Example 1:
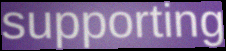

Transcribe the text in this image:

supporting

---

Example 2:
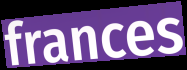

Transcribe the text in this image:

frances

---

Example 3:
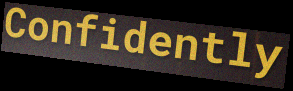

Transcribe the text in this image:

Confidently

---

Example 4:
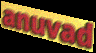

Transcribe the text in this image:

anuvad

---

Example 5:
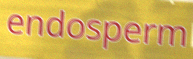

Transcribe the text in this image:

endosperm